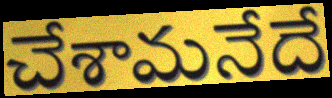
చేశామనేదే